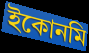
ইকোনমি